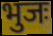
भुजः